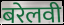
बरेलवी